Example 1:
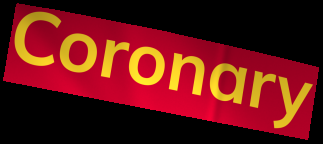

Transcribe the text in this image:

Coronary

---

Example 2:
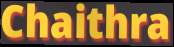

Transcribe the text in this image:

Chaithra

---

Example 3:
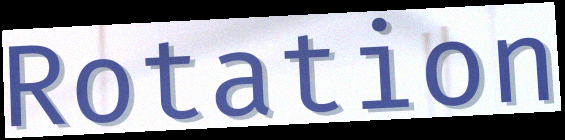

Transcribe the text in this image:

Rotation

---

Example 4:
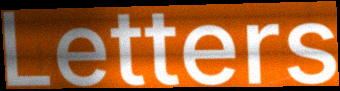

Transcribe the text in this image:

Letters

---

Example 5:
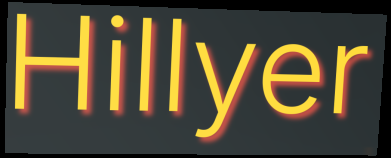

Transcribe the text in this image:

Hillyer